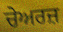
ਚੇਅਰਜ਼